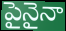
పైనైనా